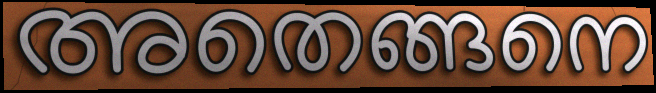
അതെങ്ങനെ